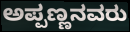
ಅಪ್ಪಣ್ಣನವರು